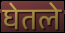
घेतले